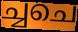
ച്ചചെ